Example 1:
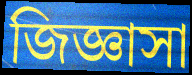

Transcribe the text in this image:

জিজ্ঞাসা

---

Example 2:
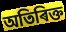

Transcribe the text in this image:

অতিৰিক্ত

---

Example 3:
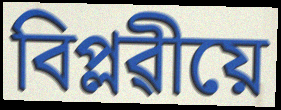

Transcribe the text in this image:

বিপ্লৱীয়ে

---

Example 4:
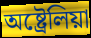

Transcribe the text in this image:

অষ্ট্ৰেলিয়া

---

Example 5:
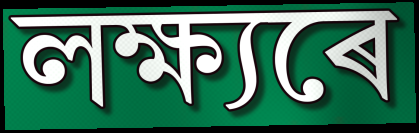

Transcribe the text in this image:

লক্ষ্যৰে